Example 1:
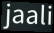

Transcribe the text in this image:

jaali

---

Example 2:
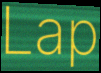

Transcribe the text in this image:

Lap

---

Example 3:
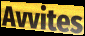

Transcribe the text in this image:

Avvites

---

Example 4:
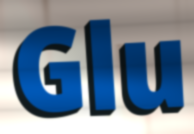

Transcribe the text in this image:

Glu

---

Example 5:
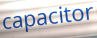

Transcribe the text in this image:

capacitor